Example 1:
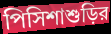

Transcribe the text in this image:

পিসিশাশুড়ির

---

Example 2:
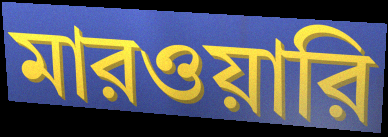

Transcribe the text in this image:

মারওয়ারি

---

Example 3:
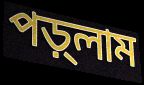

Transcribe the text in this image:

পড়্‌লাম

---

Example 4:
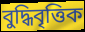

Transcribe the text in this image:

বুদ্ধিবৃত্তিক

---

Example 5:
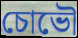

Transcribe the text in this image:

চোভৌ